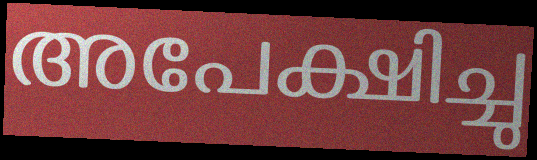
അപേക്ഷിച്ചു